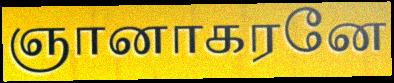
ஞானாகரனே